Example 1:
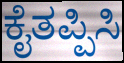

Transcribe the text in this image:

ಕೈತಪ್ಪಿಸಿ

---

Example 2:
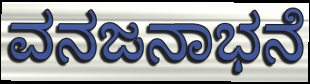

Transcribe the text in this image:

ವನಜನಾಭನೆ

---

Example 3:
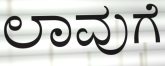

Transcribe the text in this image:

ಲಾವುಗೆ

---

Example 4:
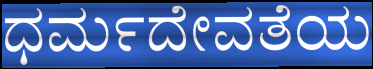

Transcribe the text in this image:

ಧರ್ಮದೇವತೆಯ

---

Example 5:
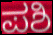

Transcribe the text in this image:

ಪಶಿ